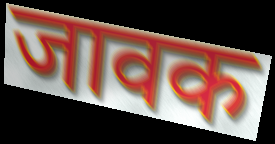
जावक